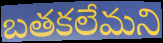
బతకలేమని